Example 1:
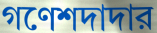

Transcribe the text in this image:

গণেশদাদার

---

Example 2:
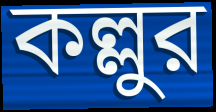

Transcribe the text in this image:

কল্লুর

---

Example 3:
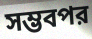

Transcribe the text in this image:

সম্ভবপর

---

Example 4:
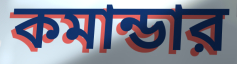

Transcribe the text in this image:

কমান্ডার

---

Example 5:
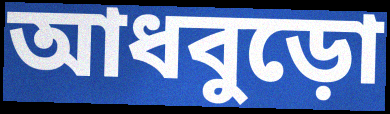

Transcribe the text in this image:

আধবুড়ো